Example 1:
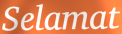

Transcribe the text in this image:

Selamat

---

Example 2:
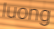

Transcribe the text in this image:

luong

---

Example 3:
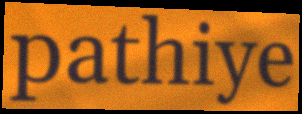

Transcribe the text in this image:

pathiye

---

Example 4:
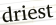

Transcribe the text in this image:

driest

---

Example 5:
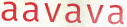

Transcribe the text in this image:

aavava